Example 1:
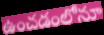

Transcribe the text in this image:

ఉంచడంలోనూ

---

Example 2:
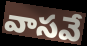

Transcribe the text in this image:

వాసవే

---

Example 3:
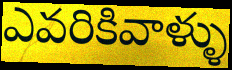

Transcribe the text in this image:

ఎవరికివాళ్ళు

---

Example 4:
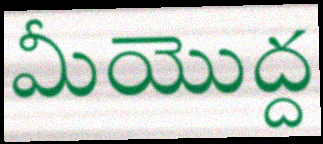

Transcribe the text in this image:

మీయొద్ద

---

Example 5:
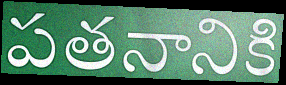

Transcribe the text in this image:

పతనానికి